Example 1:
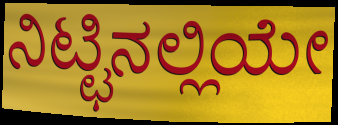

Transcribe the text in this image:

ನಿಟ್ಟಿನಲ್ಲಿಯೇ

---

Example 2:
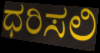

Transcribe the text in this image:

ಧರಿಸಲಿ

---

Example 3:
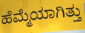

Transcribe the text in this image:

ಹೆಮ್ಮೆಯಾಗಿತ್ತು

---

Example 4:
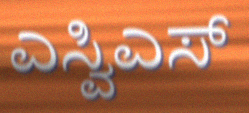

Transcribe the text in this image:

ಎಸ್ವಿಎಸ್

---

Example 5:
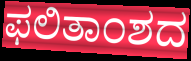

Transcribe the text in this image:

ಫಲಿತಾಂಶದ